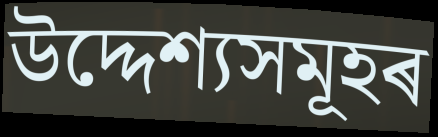
উদ্দেশ্যসমূহৰ